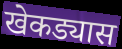
खेकड्यास